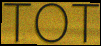
TOT